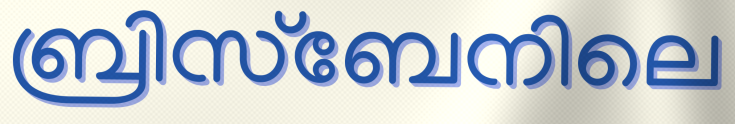
ബ്രിസ്ബേനിലെ